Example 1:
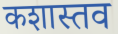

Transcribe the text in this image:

कशास्तव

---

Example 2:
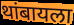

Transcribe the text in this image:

थांबायला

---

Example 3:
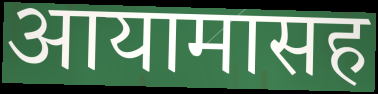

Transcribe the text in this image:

आयामासह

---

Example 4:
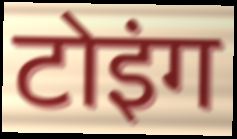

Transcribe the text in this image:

टोइंग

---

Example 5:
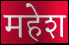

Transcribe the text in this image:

महेश